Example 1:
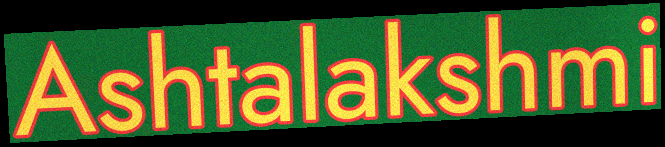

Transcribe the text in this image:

Ashtalakshmi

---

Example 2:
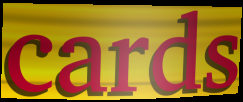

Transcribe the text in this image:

cards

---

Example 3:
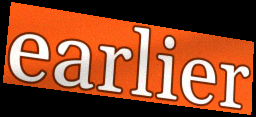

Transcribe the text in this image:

earlier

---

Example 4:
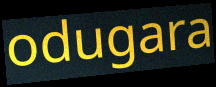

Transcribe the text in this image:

odugara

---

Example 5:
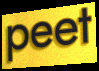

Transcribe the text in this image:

peet